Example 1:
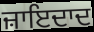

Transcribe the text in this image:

ਜ਼ਾਇਦਾਦ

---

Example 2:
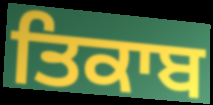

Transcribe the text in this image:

ਤਿਕਾਬ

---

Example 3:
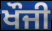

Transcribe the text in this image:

ਖੌਜੀ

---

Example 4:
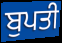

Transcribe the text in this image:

ਬੁਪਤੀ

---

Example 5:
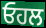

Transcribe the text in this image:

ਓਹਲ